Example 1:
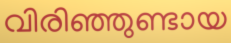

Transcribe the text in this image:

വിരിഞ്ഞുണ്ടായ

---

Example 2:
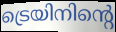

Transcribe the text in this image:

ട്രെയിനിന്റെ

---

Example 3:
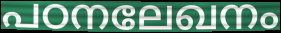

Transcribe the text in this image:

പഠനലേഖനം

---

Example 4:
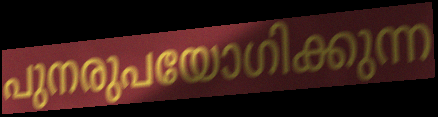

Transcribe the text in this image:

പുനരുപയോഗിക്കുന്ന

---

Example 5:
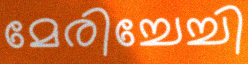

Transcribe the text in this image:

മേരിച്ചേച്ചി